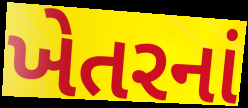
ખેતરનાં